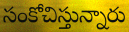
సంకోచిస్తున్నారు